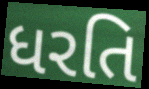
ધરતિ